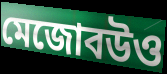
মেজোবউও